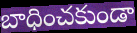
బాధించకుండా